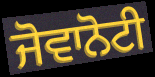
ਜੋਵਾਨੋਟੀ